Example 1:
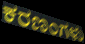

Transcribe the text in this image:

ಕರಣಂಗಳು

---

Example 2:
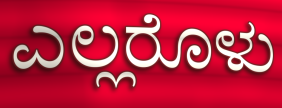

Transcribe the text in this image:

ಎಲ್ಲರೊಳು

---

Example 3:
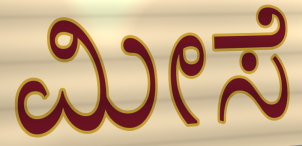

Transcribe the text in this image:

ಮೀಸೆ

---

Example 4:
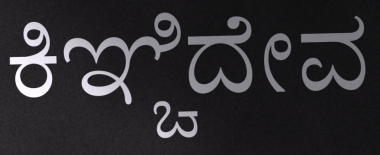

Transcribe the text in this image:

ಕಿಞ್ಚಿದೇವ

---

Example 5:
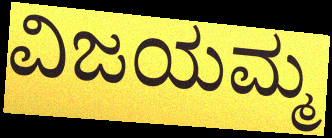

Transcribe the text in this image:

ವಿಜಯಮ್ಮ